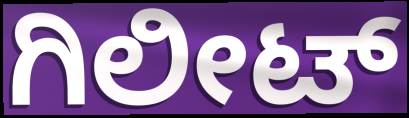
ಗಿಲೀಟ್